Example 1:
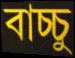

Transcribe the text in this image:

বাচ্চু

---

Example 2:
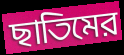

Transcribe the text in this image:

ছাতিমের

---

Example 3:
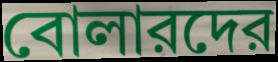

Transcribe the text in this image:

বোলারদের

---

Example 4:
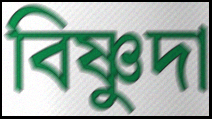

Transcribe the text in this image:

বিষ্ণুদা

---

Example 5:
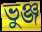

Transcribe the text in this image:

ভুঞ্জ